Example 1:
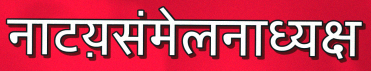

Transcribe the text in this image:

नाटय़संमेलनाध्यक्ष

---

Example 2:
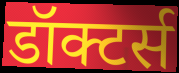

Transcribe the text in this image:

डॉक्टर्स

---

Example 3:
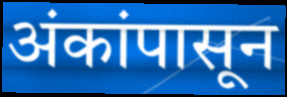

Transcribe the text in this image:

अंकांपासून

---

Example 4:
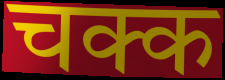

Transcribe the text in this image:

चक्‍क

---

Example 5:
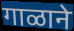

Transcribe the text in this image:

गाळाने